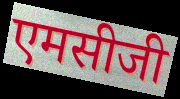
एमसीजी